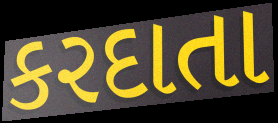
કરદાતા